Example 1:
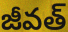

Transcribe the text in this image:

జీవత్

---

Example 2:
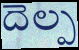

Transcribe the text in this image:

దెల్ప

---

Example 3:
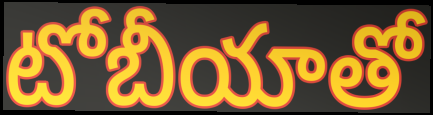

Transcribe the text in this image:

టోబీయాతో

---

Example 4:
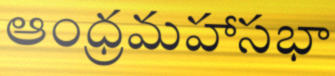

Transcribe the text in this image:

ఆంధ్రమహాసభా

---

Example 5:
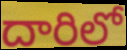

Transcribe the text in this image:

దారిలో